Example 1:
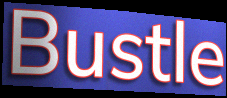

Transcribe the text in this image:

Bustle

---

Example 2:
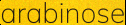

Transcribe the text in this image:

arabinose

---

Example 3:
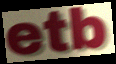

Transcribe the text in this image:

etb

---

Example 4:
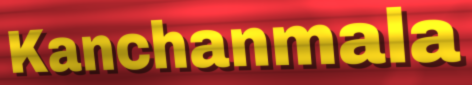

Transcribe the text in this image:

Kanchanmala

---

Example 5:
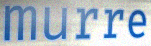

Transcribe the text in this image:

murre